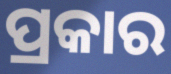
ପ୍ରକାର